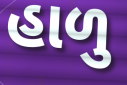
હાળુ